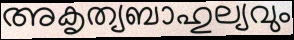
അകൃത്യബാഹുല്യവും